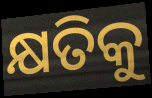
କ୍ଷତିକୁ